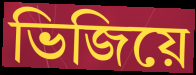
ভিজিয়ে